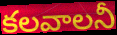
కలవాలనీ